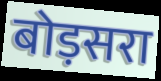
बोड़सरा